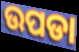
ଉପଡା